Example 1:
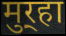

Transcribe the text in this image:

मुर्हा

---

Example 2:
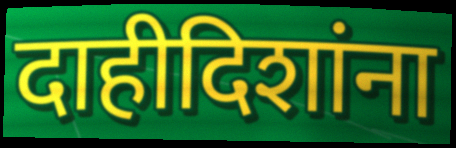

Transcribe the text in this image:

दाहीदिशांना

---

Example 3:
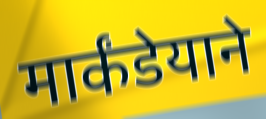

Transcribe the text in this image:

मार्कंडेयाने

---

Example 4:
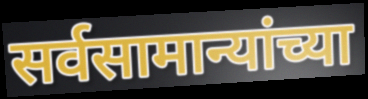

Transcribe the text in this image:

सर्वसामान्यांच्या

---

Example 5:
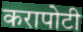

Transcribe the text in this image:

करापोटी